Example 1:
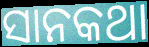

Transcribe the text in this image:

ସାନକଥା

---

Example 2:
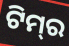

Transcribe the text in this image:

ଟିମ୍‌ର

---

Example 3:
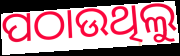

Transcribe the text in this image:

ପଠାଉଥିଲୁ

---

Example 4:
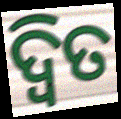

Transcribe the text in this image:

ଦ୍ୱିତ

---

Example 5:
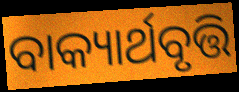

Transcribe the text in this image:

ବାକ୍ୟାର୍ଥବୃତ୍ତି